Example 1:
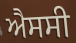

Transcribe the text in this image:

ਐਸਸੀ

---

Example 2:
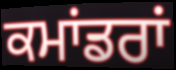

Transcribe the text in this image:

ਕਮਾਂਡਰਾਂ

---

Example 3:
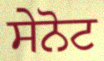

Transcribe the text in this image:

ਸੇਨੋਟ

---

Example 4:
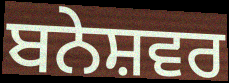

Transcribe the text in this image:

ਬਨੇਸ਼ਵਰ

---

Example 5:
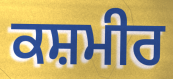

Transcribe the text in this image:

ਕਸ਼ਮੀਰ